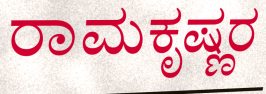
ರಾಮಕೃಷ್ಣರ